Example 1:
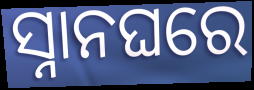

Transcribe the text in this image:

ସ୍ନାନଘରେ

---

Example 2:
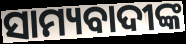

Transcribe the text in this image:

ସାମ୍ୟବାଦୀଙ୍କ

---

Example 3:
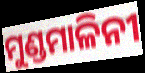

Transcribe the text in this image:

ମୁଣ୍ଡମାଳିନୀ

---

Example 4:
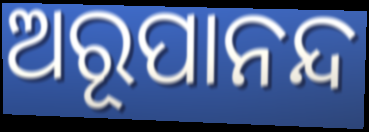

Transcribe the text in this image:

ଅରୂପାନନ୍ଦ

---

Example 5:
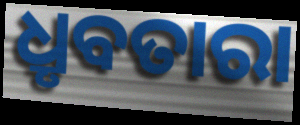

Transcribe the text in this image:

ଧ୍ରୃବତାରା